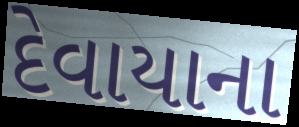
દેવાયાના